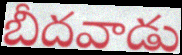
బీదవాడు